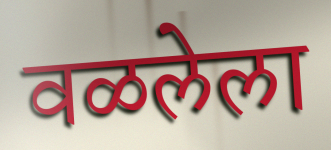
वळलेला